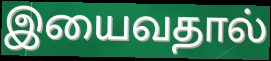
இயைவதால்